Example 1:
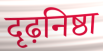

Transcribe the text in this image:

दृढ़निष्ठा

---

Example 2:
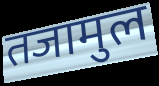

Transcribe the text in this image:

तजामुल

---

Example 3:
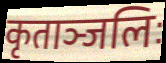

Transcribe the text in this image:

कृताञ्जलिः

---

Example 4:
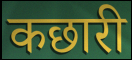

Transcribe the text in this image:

कछारी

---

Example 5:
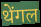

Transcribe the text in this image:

थेंगल